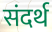
संदर्थ